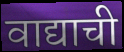
वाद्याची